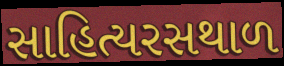
સાહિત્યરસથાળ